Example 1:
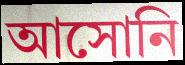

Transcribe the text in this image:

আসোনি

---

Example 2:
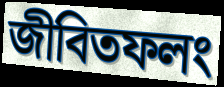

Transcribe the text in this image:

জীবিতফলং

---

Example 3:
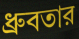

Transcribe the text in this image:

ধ্রুবতার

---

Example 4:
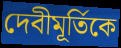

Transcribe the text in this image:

দেবীমূর্তিকে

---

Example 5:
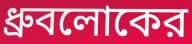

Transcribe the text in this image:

ধ্রুবলোকের